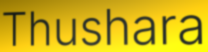
Thushara